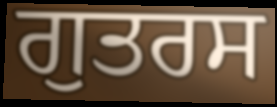
ਗੁਤਰਸ